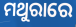
ମଥୁରାରେ